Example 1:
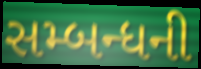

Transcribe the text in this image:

સમ્બન્ધની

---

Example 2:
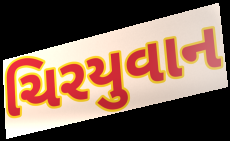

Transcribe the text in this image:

ચિરયુવાન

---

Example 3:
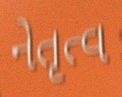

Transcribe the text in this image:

નેતૃત્વ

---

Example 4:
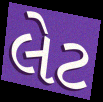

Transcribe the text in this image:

લેટ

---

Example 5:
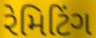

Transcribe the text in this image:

રેમિટિંગ